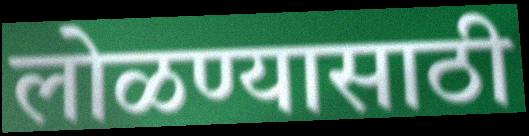
लोळण्यासाठी